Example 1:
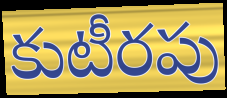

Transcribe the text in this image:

కుటీరపు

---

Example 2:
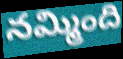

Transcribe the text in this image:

నమ్మింది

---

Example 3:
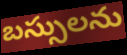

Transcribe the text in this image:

బస్సులను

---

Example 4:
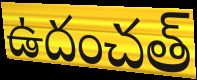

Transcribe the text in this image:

ఉదంచత్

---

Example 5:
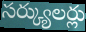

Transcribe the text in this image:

సర్క్యులర్లు